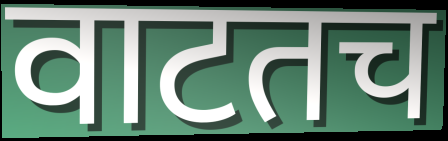
वाटतच